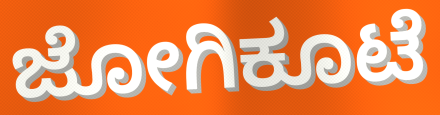
ಜೋಗಿಕೂಟೆ